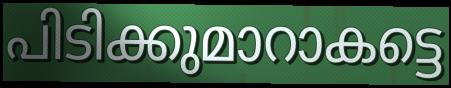
പിടിക്കുമാറാകട്ടെ